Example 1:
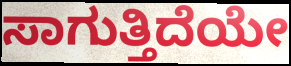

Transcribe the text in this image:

ಸಾಗುತ್ತಿದೆಯೇ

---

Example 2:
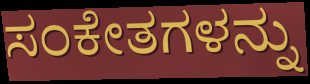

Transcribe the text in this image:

ಸಂಕೇತಗಳನ್ನು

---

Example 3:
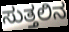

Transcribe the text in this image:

ಸುತ್ತಲಿನ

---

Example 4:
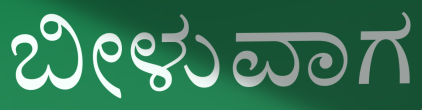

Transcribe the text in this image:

ಬೀಳುವಾಗ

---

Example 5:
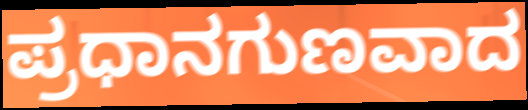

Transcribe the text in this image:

ಪ್ರಧಾನಗುಣವಾದ